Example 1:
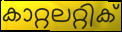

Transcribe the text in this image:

കാറ്റലറ്റിക്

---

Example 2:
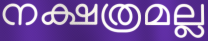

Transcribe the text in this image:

നക്ഷത്രമല്ല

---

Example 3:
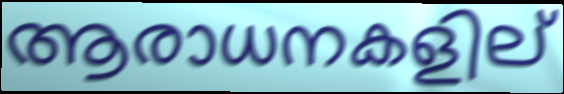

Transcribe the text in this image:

ആരാധനകളില്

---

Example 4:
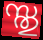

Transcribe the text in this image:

സ്തു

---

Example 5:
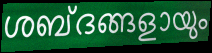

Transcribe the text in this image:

ശബ്ദങ്ങളായും